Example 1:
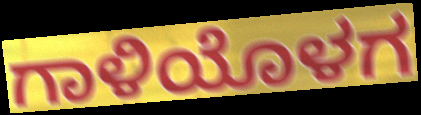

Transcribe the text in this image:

ಗಾಳಿಯೊಳಗ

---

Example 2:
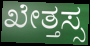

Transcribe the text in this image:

ಖೇತ್ತಸ್ಸ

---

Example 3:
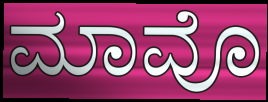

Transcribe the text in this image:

ಮಾವೊ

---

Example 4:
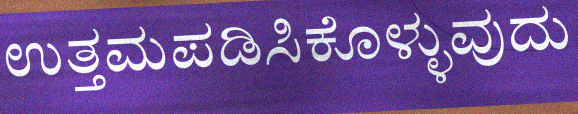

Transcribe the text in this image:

ಉತ್ತಮಪಡಿಸಿಕೊಳ್ಳುವುದು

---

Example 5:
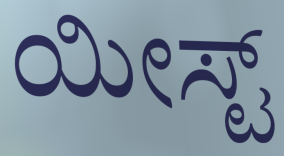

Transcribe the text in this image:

ಯೀಸ್ಟ್